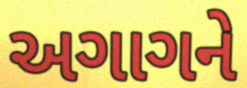
અગાગને